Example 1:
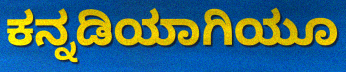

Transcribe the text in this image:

ಕನ್ನಡಿಯಾಗಿಯೂ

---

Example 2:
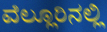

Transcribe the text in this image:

ವೆಲ್ಲೂರಿನಲ್ಲಿ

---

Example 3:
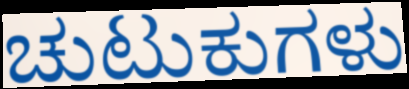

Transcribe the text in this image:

ಚುಟುಕುಗಳು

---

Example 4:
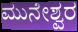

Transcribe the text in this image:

ಮುನೇಶ್ವರ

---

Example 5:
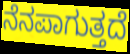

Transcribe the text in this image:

ನೆನಪಾಗುತ್ತದೆ